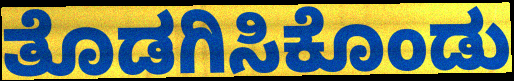
ತೊಡಗಿಸಿಕೊಂಡು